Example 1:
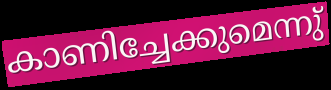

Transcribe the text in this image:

കാണിച്ചേക്കുമെന്നു്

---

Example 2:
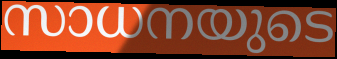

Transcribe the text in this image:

സാധനയുടെ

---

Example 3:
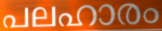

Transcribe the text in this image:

പലഹാരം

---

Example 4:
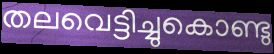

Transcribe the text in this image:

തലവെട്ടിച്ചുകൊണ്ടു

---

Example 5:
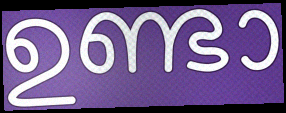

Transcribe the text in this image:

ഉണ്ടാ